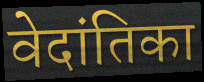
वेदांतिका